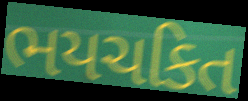
ભયચકિત